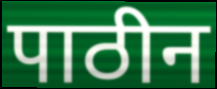
पाठीन